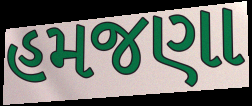
હમજણા